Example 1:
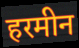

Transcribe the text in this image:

हरमीन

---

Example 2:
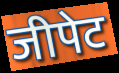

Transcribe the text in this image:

जीपेट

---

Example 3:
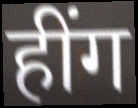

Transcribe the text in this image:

हींग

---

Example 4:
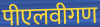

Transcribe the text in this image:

पीएलवीगण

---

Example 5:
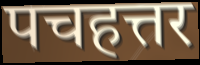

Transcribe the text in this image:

पचहत्तर